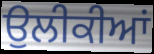
ਉਲੀਕੀਆਂ